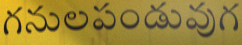
గనులపండువుగ